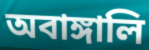
অবাঙ্গালি